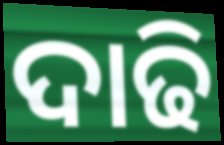
ଦାଢି